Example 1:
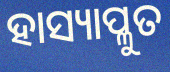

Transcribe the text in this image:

ହାସ୍ୟାପ୍ଳୁତ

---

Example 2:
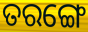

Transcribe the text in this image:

ତରଙ୍ଗେ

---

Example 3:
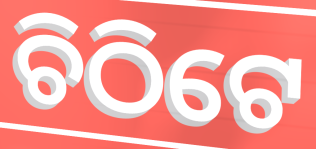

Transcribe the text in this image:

ଚିଠିଟେ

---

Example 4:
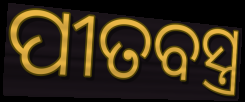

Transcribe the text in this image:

ପୀତବସ୍ତ୍ର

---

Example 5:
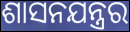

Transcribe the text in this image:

ଶାସନଯନ୍ତ୍ରର